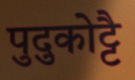
पुदुकोट्टै